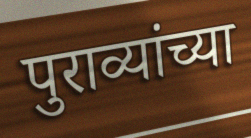
पुराव्यांच्या